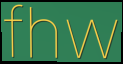
fhw